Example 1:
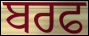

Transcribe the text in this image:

ਬਰਫ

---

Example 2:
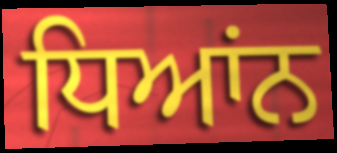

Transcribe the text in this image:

ਧਿਆਂਨ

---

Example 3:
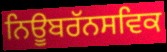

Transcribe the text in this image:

ਨਿਊਬਰੱਨਸਵਿਕ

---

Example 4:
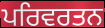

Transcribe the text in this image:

ਪਰਿਵਰਤਨ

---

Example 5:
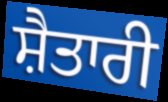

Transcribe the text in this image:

ਸ਼ੈਤਾਰੀ